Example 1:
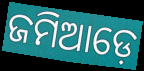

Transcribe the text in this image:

ଜମିଆଡ଼େ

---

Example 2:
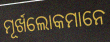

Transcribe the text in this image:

ମୂର୍ଖଲୋକମାନେ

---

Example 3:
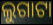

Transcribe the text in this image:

ଲୁଗାଟା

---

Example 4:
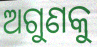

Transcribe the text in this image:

ଅଗୁଣକୁ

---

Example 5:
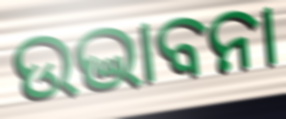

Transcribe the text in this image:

ଉଦ୍ଭାବନା